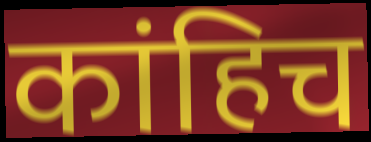
कांहिच